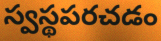
స్వస్థపరచడం